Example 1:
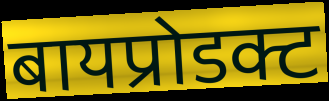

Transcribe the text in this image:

बायप्रोडक्ट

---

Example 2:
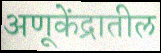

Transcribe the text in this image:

अणूकेंद्रातील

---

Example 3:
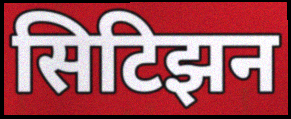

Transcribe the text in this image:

सिटिझन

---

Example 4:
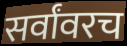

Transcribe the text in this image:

सर्वांवरच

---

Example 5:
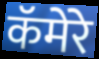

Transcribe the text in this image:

कॅमेरे